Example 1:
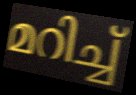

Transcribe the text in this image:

മറിച്ച്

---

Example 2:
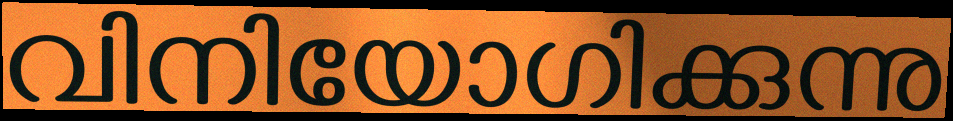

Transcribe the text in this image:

വിനിയോഗിക്കുന്നു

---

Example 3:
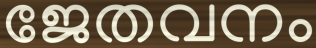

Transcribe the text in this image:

ജേതവനം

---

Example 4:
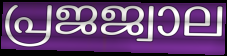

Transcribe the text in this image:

പ്രജജ്വാല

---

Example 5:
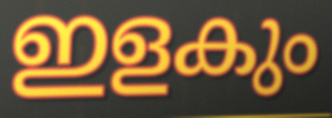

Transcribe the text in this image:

ഇളകും